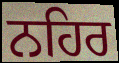
ਨਹਿਰ